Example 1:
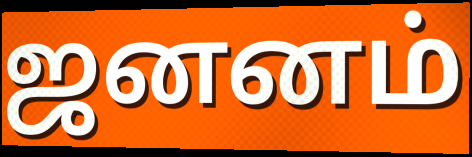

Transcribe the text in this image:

ஜனனம்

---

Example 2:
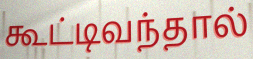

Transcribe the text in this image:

கூட்டிவந்தால்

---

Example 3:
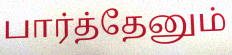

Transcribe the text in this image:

பார்த்தேனும்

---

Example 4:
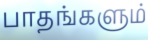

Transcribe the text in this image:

பாதங்களும்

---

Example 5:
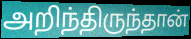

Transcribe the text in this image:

அறிந்திருந்தான்